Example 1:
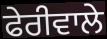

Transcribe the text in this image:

ਫੇਰੀਵਾਲੇ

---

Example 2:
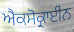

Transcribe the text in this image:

ਐਕਸੋਕ੍ਰਾਈਨ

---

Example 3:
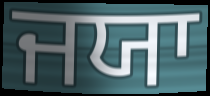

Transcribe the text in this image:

ਜਯਾ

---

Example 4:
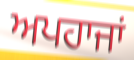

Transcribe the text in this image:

ਅਪਹਾਜਾਂ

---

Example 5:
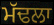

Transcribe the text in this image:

ਮੱਢਲਾ